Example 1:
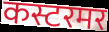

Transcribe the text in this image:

कस्टरमर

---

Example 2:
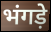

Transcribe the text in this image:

भंगड़े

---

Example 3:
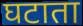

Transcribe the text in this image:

घटाता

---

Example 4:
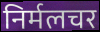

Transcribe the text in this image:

निर्मलचर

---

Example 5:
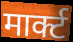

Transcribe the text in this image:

मार्क्ट